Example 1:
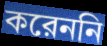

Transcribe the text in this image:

করেননি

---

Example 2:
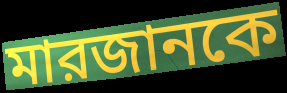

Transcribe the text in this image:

মারজানকে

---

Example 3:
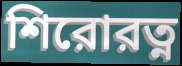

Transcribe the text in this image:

শিরোরত্ন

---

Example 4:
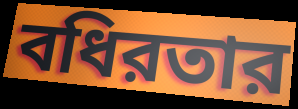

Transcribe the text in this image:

বধিরতার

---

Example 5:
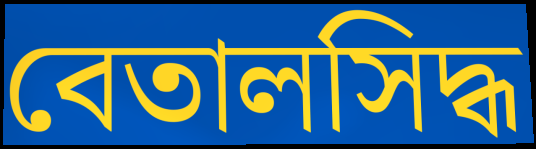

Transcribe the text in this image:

বেতালসিদ্ধ